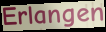
Erlangen